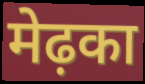
मेढ़का